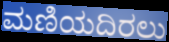
ಮಣಿಯದಿರಲು